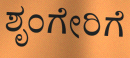
ಶೃಂಗೇರಿಗೆ